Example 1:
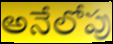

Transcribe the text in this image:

అనేలోపు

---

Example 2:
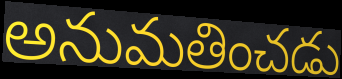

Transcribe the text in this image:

అనుమతించడు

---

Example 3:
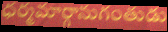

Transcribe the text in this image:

ధర్మమార్గానుగంతుడు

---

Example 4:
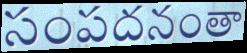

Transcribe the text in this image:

సంపదనంతా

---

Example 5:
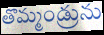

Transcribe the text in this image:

తొమ్మండ్రును